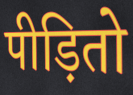
पीड़ितो